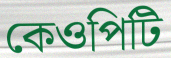
কেওপিটি